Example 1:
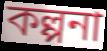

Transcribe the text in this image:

কল্পনা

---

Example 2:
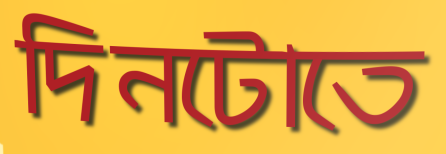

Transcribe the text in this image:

দিনটোতে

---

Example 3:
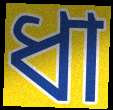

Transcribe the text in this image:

ধা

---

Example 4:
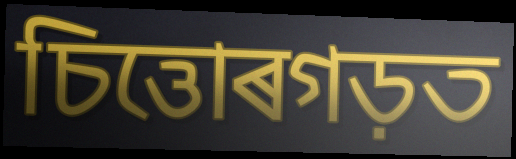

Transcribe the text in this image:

চিত্তোৰগড়ত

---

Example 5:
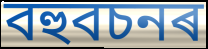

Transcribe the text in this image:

বহুবচনৰ